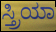
ಸ್ತ್ರಿಯಾ